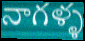
నాగళ్ళ